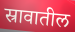
स्रावातील